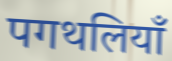
पगथलियाँ